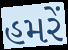
હમરેં